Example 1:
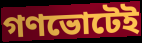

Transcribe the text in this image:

গণভোটেই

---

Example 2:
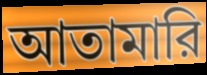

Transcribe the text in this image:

আতামারি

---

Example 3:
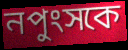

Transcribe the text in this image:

নপুংসকে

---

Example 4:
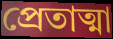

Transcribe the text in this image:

প্রেতাত্মা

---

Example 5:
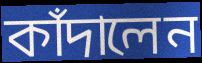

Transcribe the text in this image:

কাঁদালেন